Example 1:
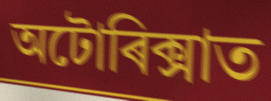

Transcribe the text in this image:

অটোৰিক্সাত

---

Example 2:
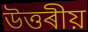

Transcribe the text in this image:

উত্তৰীয়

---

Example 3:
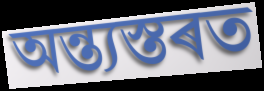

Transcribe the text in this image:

অন্ত্যস্তৰত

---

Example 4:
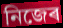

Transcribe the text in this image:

নিজেৰ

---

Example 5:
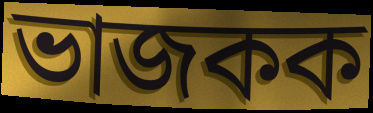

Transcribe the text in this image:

ভাজকক